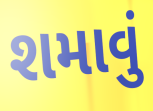
શમાવું